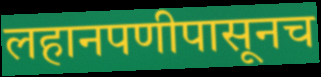
लहानपणीपासूनच